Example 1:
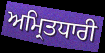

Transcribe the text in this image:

ਅਮ੍ਰਿਤਧਾਰੀ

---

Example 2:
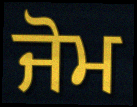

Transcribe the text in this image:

ਜੋਮ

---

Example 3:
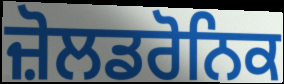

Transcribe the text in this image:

ਜ਼ੋਲਡਰੋਨਿਕ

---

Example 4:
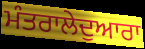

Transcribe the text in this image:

ਮੰਤਰਾਲੇਦੁਆਰਾ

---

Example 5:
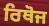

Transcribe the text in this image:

ਰਿਥੋਜ